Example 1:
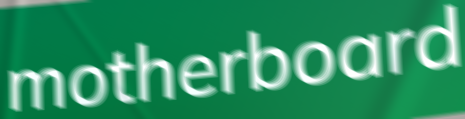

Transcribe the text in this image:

motherboard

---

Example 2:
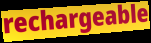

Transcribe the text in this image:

rechargeable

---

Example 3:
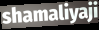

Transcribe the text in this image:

shamaliyaji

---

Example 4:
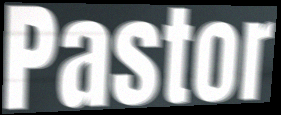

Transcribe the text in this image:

Pastor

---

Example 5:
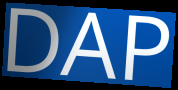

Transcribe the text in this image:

DAP